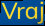
Vraj